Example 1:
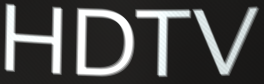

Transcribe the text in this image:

HDTV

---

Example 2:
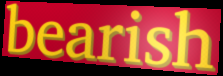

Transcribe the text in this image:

bearish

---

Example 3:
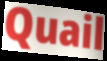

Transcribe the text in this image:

Quail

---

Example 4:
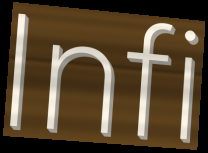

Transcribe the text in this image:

Infi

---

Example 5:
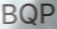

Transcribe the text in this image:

BQP